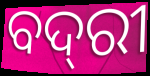
ବଦ୍‌ରୀ